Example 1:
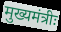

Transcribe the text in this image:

मुख्यमंत्रीः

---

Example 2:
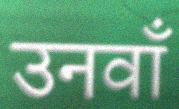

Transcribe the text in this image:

उनवाँ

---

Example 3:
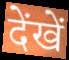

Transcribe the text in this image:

देंखें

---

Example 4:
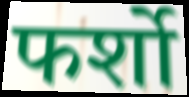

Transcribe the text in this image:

फर्शो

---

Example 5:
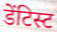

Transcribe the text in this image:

डेंटिस्ट